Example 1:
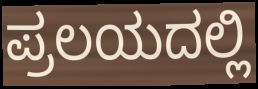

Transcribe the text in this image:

ಪ್ರಲಯದಲ್ಲಿ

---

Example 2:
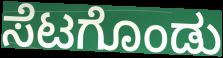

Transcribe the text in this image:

ಸೆಟಗೊಂಡು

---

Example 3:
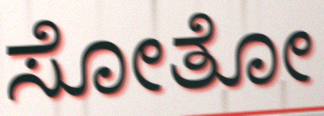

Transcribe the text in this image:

ಸೋತೋ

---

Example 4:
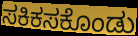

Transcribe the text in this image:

ಸಕಿಕಸಕೊಂಡು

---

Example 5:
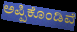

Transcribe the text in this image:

ಅಪ್ಪಿಕೊಂಡಿವೆ